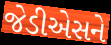
જેડીએસને